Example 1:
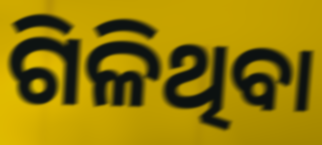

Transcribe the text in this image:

ଗିଳିଥିବା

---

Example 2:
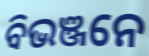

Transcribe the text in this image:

ବିଭଞ୍ଜନେ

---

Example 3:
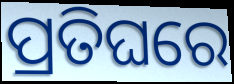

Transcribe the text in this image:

ପ୍ରତିଘରେ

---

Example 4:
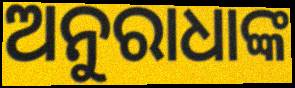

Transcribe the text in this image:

ଅନୁରାଧାଙ୍କ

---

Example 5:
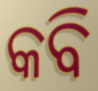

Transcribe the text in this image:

କବି